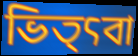
ভিত্ৎবা